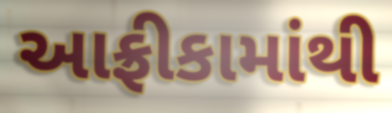
આફ્રીકામાંથી